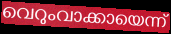
വെറുംവാക്കായെന്ന്